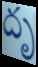
దృ